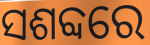
ସଶବ୍ଦରେ